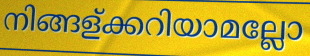
നിങ്ങള്ക്കറിയാമല്ലോ